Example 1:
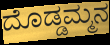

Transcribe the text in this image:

ದೊಡ್ಡಮ್ಮನ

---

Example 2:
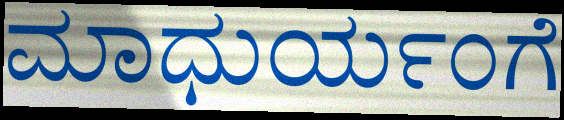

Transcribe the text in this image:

ಮಾಧುರ್ಯಂಗೆ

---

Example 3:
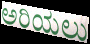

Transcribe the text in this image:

ಅರಿಯಲು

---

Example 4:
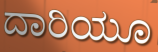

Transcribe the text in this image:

ದಾರಿಯೂ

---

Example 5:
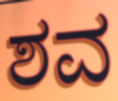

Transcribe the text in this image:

ಶವ